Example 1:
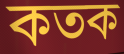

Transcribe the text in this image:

কতক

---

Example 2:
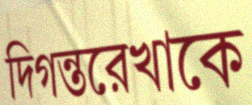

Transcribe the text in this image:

দিগন্তরেখাকে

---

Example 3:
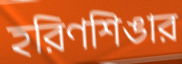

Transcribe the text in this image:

হরিণশিঙার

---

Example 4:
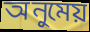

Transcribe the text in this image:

অনুমেয়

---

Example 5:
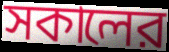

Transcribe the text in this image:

সকালের